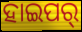
ହାଇପର୍